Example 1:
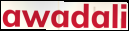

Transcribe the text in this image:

awadali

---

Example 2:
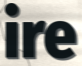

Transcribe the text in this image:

ire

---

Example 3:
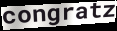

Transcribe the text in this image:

congratz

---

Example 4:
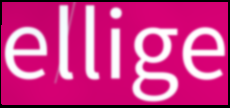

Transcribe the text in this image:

ellige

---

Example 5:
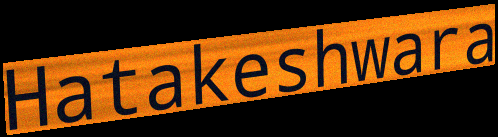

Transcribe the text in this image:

Hatakeshwara